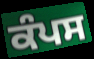
ਕੰਪਸ